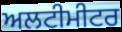
ਅਲਟੀਮੀਟਰ